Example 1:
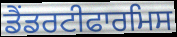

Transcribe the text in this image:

ਡੈਂਡਰਟੀਫਾਰਮਿਸ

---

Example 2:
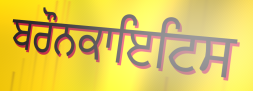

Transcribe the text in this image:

ਬਰੌਨਕਾਇਟਿਸ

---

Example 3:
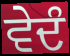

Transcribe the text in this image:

ਵੇਦੰ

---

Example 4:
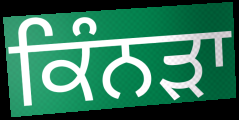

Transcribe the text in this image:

ਕਿੰਨੜਾ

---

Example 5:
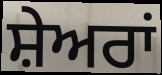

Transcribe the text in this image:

ਸ਼ੇਅਰਾਂ